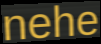
nehe